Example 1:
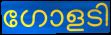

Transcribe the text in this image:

ഗോളടി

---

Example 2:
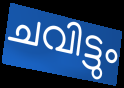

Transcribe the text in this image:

ചവിട്ടും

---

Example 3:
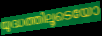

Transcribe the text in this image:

യുദ്ധത്തിലൂടെയോ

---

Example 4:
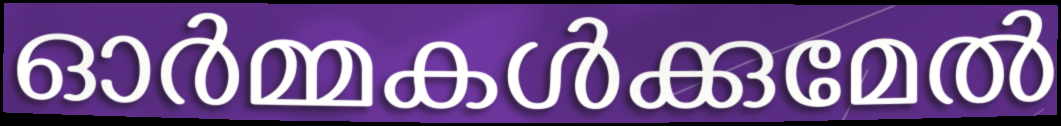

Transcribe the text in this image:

ഓർമ്മകൾക്കുമേൽ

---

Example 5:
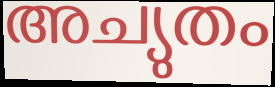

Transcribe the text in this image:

അച്യുതം